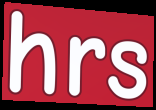
hrs